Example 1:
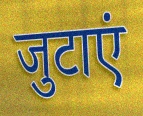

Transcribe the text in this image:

जुटाएं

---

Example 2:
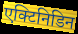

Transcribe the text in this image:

एक्टिनिडिन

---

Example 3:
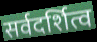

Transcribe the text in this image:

सर्वदर्शित्व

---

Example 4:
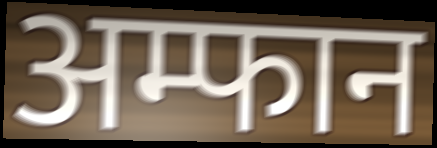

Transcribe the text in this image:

अम्‍फान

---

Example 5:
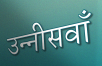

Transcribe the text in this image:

उन्‍नीसवाँ